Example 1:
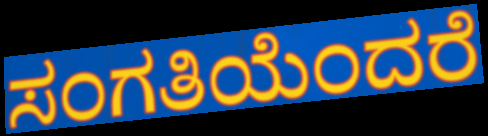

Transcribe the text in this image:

ಸಂಗತಿಯೆಂದರೆ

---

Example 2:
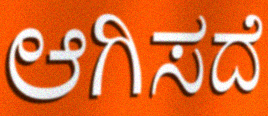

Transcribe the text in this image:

ಆಗಿಸದೆ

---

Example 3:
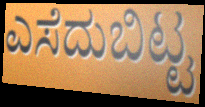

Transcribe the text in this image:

ಎಸೆದುಬಿಟ್ಟ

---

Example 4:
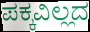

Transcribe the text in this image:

ಪಕ್ಕವಿಲ್ಲದ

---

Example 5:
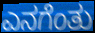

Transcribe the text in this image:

ಎನಗೆಂತು